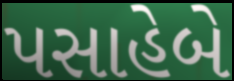
પસાહેબે